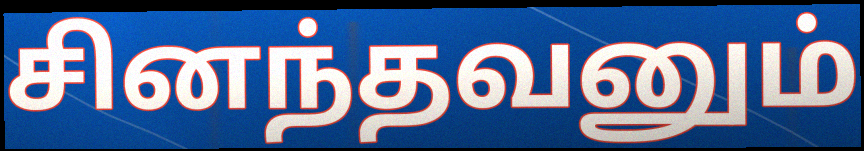
சினந்தவனும்